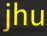
jhu